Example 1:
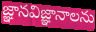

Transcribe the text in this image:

జ్ఞానవిజ్ఞానాలను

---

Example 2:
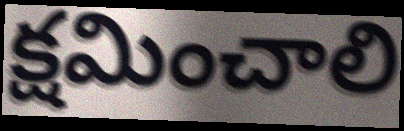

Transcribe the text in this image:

క్షమించాలి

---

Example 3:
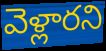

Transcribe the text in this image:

వెళ్లారని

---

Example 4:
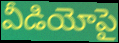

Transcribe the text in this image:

వీడియోపై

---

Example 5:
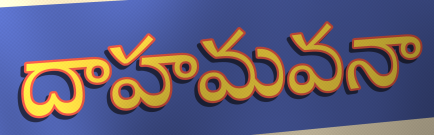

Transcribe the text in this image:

దాహమవనా